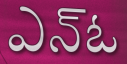
ఎన్ఓ